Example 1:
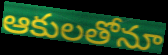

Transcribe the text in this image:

ఆకులతోనూ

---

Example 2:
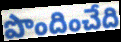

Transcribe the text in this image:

పొందించేది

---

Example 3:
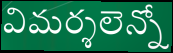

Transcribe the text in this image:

విమర్శలెన్నో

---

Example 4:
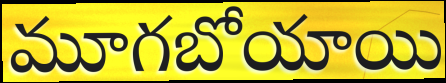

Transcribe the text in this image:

మూగబోయాయి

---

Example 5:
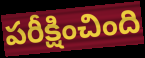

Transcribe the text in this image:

పరీక్షించింది